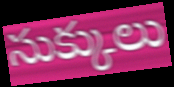
సుక్కులు